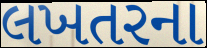
લખતરના